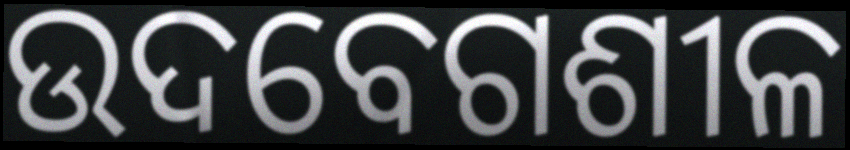
ଉଦବେଗଶୀଳ